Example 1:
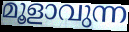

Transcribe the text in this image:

മൂളാവുന്ന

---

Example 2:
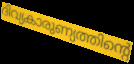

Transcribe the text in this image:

ദിവ്യകാരുണ്യത്തിന്റെ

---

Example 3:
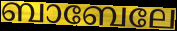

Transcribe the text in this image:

ബാബേലേ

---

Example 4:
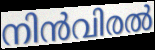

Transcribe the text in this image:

നിൻവിരൽ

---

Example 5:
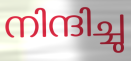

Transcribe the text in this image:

നിന്ദിച്ചു